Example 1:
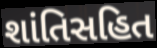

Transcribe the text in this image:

શાંતિસહિત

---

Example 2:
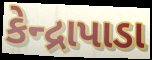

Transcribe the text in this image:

કેન્દ્રાપાડા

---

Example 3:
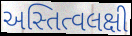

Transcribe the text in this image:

અસ્તિત્વલક્ષી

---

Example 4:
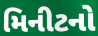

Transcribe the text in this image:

મિનીટનો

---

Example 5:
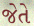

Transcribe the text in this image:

જેતે